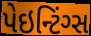
પેઇન્ટિંગ્સ